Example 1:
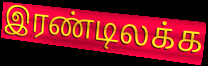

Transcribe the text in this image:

இரண்டிலக்க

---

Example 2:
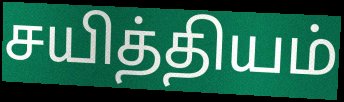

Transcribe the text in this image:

சயித்தியம்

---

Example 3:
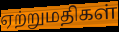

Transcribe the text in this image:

ஏற்றுமதிகள்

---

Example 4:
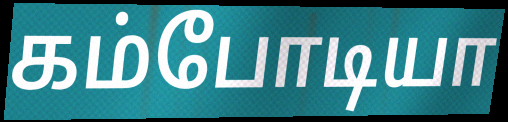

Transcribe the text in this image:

கம்போடியா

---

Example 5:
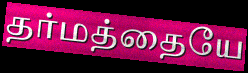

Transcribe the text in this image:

தர்மத்தையே